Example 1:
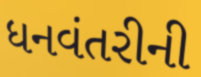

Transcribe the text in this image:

ધનવંતરીની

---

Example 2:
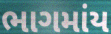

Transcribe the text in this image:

ભાગમાંય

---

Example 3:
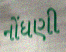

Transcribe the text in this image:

નોંધણી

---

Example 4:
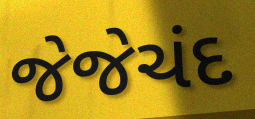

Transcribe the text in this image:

જેજેચંદ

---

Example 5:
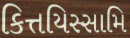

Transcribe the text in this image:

કિત્તયિસ્સામિ